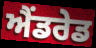
ਐਂਡਰੇਡ